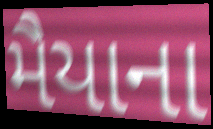
મૈયાના